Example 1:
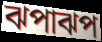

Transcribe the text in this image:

ঝপাঝপ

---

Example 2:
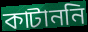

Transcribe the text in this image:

কাটাননি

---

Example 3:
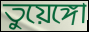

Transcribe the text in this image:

তুয়েঙ্গো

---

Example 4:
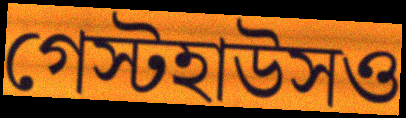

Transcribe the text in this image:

গেস্টহাউসও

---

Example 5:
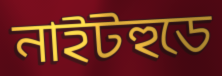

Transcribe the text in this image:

নাইটহুডে